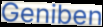
Geniben